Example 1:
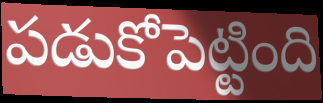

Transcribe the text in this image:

పడుకోపెట్టింది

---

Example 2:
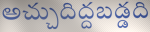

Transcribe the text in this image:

అచ్చుదిద్దబడ్డది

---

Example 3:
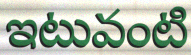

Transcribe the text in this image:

ఇటువంటి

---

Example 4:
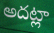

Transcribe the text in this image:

అదట్లా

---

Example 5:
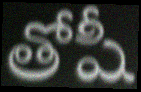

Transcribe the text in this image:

తోషీ